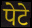
पेटे